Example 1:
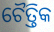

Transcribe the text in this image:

ଚୈତ୍ତିକ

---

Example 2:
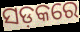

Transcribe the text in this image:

ସଡ଼କରେ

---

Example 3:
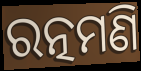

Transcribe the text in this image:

ରତ୍ନମଣି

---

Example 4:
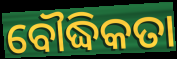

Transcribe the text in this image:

ବୌଦ୍ଧିକତା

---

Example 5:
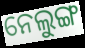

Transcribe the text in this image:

ନେଲୁଙ୍ଗ